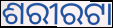
ଶରୀରଟା